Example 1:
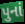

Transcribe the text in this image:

પુનાં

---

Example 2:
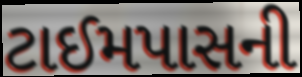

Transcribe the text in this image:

ટાઈમપાસની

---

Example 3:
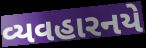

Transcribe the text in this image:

વ્યવહારનયે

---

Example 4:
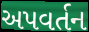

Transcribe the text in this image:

અપવર્તન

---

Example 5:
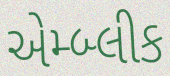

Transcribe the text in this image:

એમ્બ્લીક